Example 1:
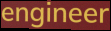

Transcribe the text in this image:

engineer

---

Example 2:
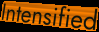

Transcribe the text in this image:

Intensified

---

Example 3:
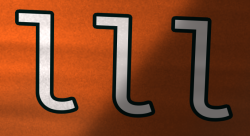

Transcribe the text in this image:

lll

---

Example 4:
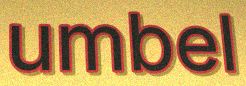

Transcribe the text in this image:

umbel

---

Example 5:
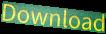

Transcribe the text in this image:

Download